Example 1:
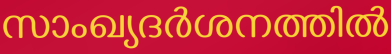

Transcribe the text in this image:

സാംഖ്യദർശനത്തിൽ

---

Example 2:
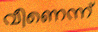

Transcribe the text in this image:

വീണെന്ന്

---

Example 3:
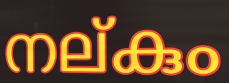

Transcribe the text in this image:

നല്‌കും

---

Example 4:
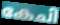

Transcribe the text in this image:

കേചി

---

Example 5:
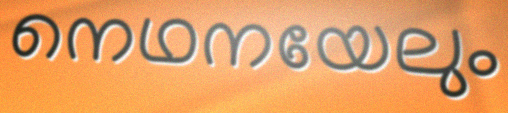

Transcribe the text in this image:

നെഥനയേലും